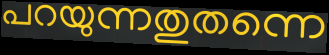
പറയുന്നതുതന്നെ